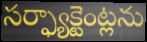
సర్ఫ్యాక్టెంట్లను